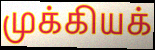
முக்கியக்